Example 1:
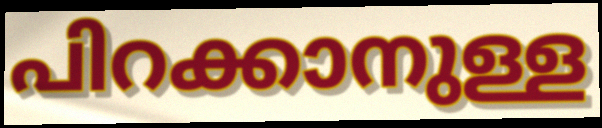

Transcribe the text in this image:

പിറക്കാനുള്ള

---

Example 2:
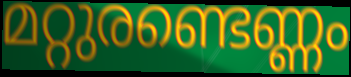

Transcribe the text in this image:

മറ്റുരണ്ടെണ്ണം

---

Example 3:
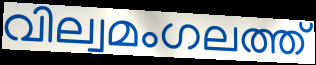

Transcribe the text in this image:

വില്വമംഗലത്ത്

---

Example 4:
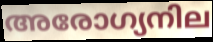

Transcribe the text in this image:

അരോഗ്യനില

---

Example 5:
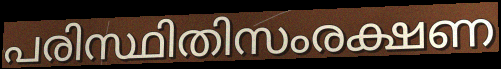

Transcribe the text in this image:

പരിസ്ഥിതിസംരക്ഷണ